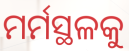
ମର୍ମସ୍ଥଳକୁ